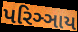
પરિઞ્ઞાય